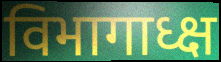
विभागाध्क्ष